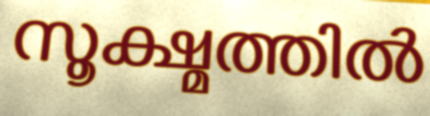
സൂക്ഷ്മത്തിൽ